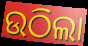
ଉଠିଲା